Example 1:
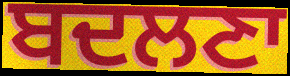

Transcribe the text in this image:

ਬਦਲਣਾ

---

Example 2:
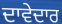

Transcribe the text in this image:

ਦਾਵੇਦਾਰ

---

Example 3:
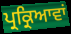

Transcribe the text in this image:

ਪ੍ਰਕ੍ਰਿਆਵਾਂ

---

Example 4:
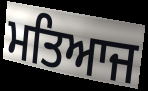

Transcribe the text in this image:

ਮਤਿਆਜ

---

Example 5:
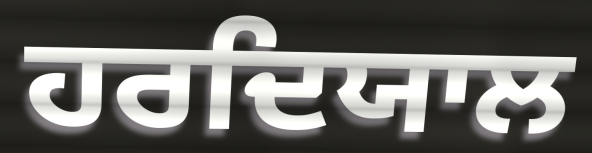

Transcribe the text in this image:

ਹਰਦਿਯਾਲ